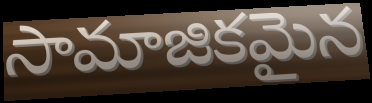
సామాజికమైన